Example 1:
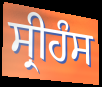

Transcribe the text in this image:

ਸ੍ਰੀਹੰਸ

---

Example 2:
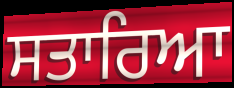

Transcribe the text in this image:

ਸਤਾਰਿਆ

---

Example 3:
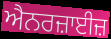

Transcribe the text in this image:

ਐਨਰਜ਼ਾਈਜ਼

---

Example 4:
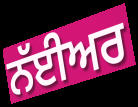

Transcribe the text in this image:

ਨੱਈਅਰ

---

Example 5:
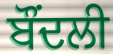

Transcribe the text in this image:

ਬੌਂਦਲੀ